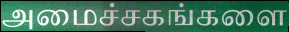
அமைச்சகங்களை